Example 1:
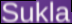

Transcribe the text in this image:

Sukla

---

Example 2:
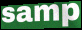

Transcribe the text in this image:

samp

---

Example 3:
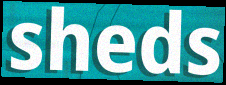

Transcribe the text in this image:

sheds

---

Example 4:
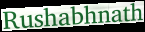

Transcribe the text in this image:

Rushabhnath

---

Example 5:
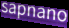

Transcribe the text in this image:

sapnano